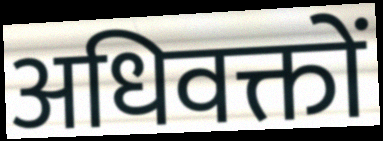
अधिवक्तों